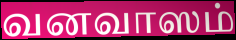
வனவாஸம்